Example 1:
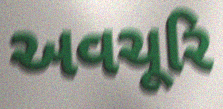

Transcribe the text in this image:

અવચૂરિ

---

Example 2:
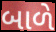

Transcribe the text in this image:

બાળે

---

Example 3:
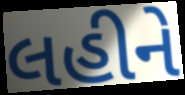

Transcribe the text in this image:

લહીને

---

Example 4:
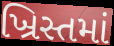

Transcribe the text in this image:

ખ્રિસ્તમાં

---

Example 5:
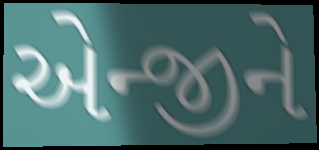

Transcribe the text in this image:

એન્જીને